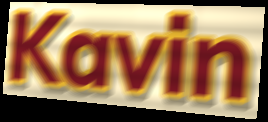
Kavin